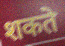
शकते